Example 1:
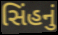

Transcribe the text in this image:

સિંહનું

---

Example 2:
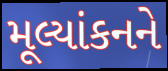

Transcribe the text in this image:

મૂલ્યાંકનને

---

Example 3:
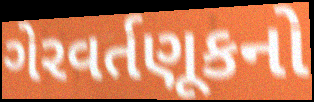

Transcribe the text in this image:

ગેરવર્તણૂકનો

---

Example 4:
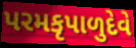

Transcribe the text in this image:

પરમકૃપાળુદેવે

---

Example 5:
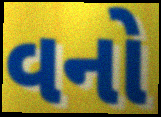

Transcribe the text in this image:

વનો